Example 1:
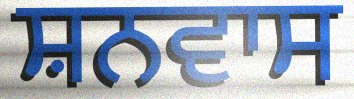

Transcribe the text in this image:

ਸ਼ਨਵਾਸ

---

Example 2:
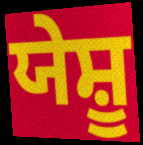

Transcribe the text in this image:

ਯੇਸ਼ੂ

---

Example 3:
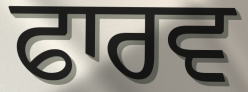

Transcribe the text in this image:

ਫਾਰਵ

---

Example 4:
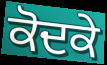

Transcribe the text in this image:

ਕੋਦਕੇ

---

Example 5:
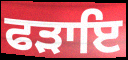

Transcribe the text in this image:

ਫੜਾਇ